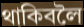
থাকিবলৈ